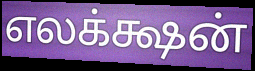
எலக்க்ஷன்